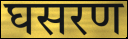
घसरण